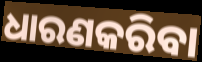
ଧାରଣକରିବା